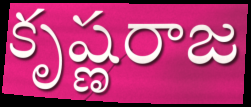
కృష్ణరాజ